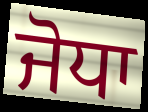
ਜੋਧਾ